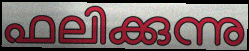
ഫലിക്കുന്നു